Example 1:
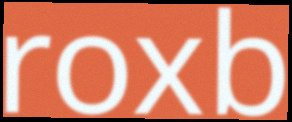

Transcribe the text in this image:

roxb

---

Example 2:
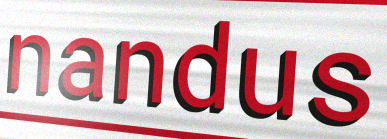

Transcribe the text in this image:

nandus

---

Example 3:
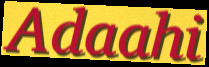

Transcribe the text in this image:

Adaahi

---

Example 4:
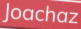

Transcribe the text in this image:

Joachaz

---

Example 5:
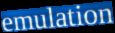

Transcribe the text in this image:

emulation